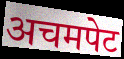
अचमपेट